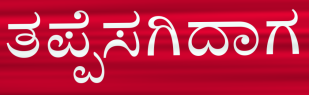
ತಪ್ಪೆಸಗಿದಾಗ